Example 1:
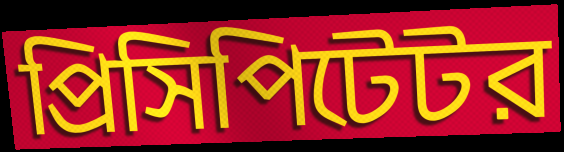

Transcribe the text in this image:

প্রিসিপিটেটর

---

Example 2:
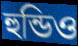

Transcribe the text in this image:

হুন্ডিও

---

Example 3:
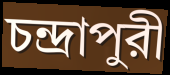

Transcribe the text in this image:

চন্দ্রাপুরী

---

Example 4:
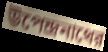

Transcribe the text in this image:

উপেন্দ্রনাথের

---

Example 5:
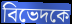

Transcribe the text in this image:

বিভেদকে